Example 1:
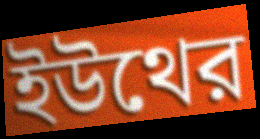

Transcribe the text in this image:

ইউথের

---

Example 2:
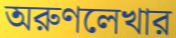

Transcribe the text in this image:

অরুণলেখার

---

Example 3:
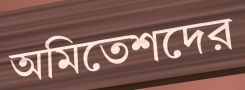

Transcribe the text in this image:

অমিতেশদের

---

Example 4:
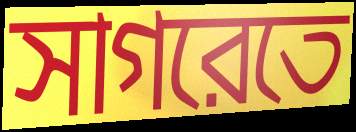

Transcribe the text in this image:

সাগরেতে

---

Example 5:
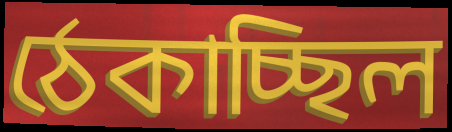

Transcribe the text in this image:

ঠেকাচ্ছিল